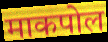
माकपोल